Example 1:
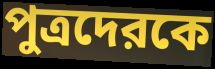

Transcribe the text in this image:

পুত্রদেরকে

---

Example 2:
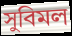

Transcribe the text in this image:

সুবিমল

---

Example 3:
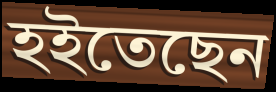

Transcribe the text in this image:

হইতেছেন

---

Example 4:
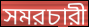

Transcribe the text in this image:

সমরচারী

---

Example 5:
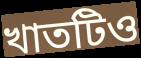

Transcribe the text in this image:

খাতটিও